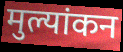
मुल्यांकन